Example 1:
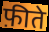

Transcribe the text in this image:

फ़ीते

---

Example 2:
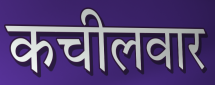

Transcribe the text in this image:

कचीलवार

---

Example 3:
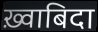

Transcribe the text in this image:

ख़्वाबिदा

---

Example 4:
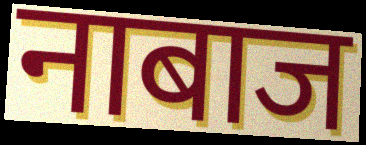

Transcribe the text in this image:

नाबाज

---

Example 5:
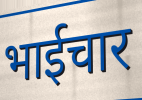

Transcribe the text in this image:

भाईचार